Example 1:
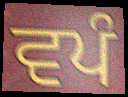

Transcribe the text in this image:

ਵਪੰ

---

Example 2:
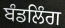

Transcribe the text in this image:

ਬੰਡਲਿੰਗ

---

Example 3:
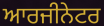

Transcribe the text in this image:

ਆਰਜੀਨੇਟਰ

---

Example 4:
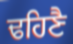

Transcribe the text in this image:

ਢਹਿਣੈ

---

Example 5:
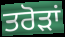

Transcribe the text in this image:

ਤਰੋੜਾਂ